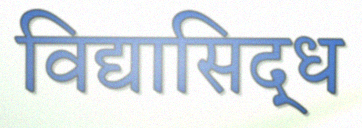
विद्यासिद्ध